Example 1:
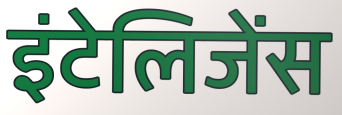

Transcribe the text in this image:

इंटेलिजेंस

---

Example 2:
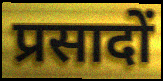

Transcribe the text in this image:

प्रसादों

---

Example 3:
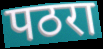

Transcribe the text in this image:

पठरा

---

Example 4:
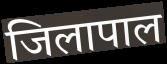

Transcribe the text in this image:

जिलापाल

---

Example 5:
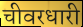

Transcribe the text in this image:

चीवरधारी